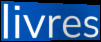
livres